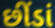
છીંડાં